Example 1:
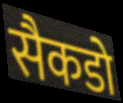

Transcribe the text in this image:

सैकडो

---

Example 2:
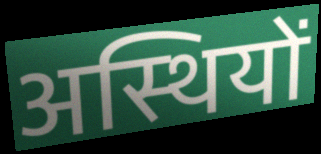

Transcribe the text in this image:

अस्थियों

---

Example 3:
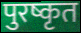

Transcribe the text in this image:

पुरष्कृत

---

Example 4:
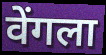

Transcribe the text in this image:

वेंगला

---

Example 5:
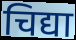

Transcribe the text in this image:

चिद्या